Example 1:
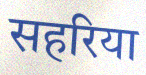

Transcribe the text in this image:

सहरिया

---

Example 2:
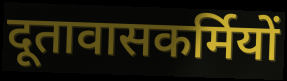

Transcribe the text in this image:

दूतावासकर्मियों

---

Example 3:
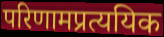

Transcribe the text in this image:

परिणामप्रत्ययिक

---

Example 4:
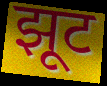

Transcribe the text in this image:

झूट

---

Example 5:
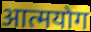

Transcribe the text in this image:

आत्मयोग